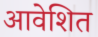
आवेशित